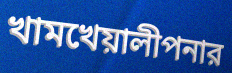
খামখেয়ালীপনার